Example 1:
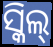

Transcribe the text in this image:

ସ୍କିଲ୍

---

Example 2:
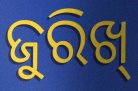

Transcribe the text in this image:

ଜୁରିଖ୍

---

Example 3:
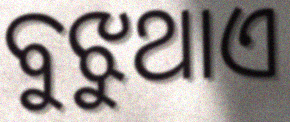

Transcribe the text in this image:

ବୁଝୁଥାଏ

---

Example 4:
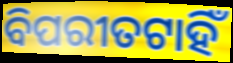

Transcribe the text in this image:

ବିପରୀତଟାହିଁ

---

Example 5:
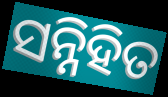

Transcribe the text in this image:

ସନ୍ନିହିତ